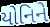
યોનિને